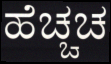
ಹೆಚ್ಚಚ